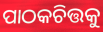
ପାଠକଚିତ୍ତକୁ